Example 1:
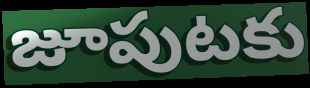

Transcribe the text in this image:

జూపుటకు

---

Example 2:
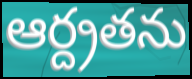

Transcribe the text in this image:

ఆర్ద్రతను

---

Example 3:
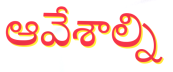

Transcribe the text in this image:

ఆవేశాల్ని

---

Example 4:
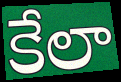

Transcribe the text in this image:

కేలా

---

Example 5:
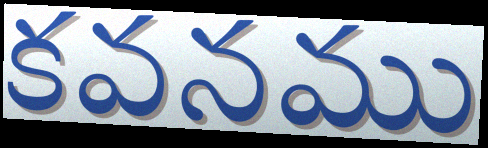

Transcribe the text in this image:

కవనము